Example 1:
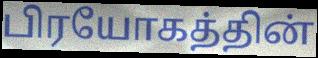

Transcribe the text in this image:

பிரயோகத்தின்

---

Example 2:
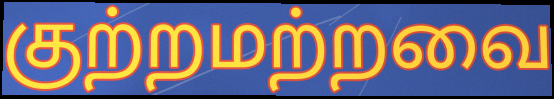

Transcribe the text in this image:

குற்றமற்றவை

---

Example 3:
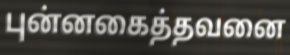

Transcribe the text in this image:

புன்னகைத்தவனை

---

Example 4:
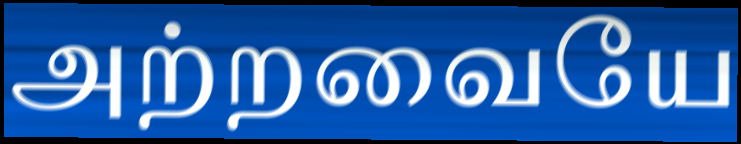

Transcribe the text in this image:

அற்றவையே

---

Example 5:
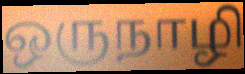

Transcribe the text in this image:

ஒருநாழி